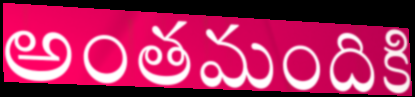
అంతమందికి